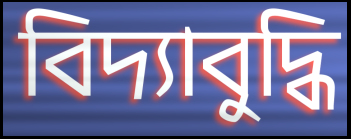
বিদ্যাবুদ্ধি